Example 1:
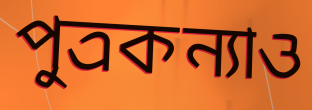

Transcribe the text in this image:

পুত্রকন্যাও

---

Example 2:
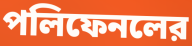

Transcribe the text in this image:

পলিফেনলের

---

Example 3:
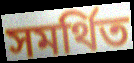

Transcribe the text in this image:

সমর্থিত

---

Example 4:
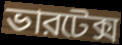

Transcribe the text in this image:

ভারটেক্স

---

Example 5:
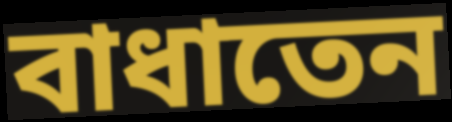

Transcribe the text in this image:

বাধাতেন